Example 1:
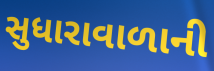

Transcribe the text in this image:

સુધારાવાળાની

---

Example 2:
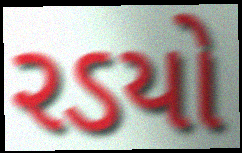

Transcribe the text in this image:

રડયો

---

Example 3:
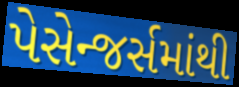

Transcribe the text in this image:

પેસેન્જર્સમાંથી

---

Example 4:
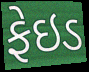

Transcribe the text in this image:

ફેઇડ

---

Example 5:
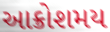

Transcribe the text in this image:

આક્રોશમય